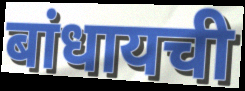
बांधायची